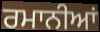
ਰਮਾਨੀਆਂ